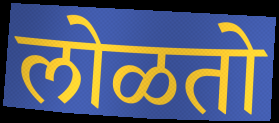
लोळतो